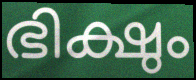
ഭിക്ഷും